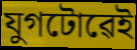
যুগটোৱেই